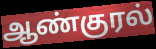
ஆண்குரல்